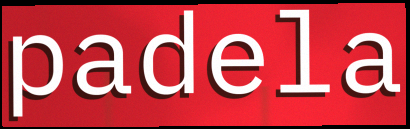
padela